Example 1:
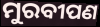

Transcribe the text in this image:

ମୁରବୀପଣ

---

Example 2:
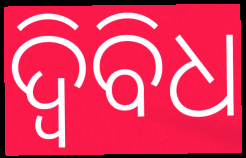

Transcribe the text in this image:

ଦ୍ୱିବିଧ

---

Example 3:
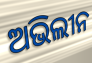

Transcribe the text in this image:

ଅଭିଲୀନ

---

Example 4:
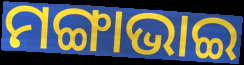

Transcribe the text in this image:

ମଙ୍ଗାଭାଇ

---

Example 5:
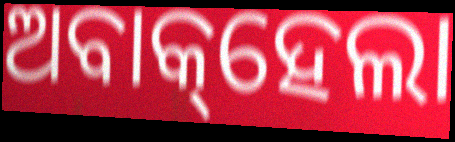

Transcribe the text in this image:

ଅବାକ୍‌ହେଲା